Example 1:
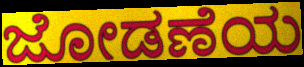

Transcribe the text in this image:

ಜೋಡಣೆಯ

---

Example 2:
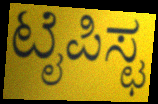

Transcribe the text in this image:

ಟೈಪಿಸ್ಟ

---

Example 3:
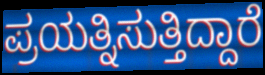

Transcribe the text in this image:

ಪ್ರಯತ್ನಿಸುತ್ತಿದ್ದಾರೆ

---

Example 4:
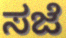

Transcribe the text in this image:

ಸಜೆ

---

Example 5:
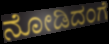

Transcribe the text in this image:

ನೋಡಿದಂಗೆ